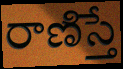
రాణిస్తే